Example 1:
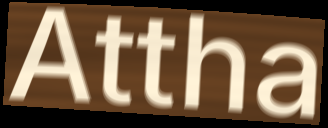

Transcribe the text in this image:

Attha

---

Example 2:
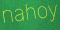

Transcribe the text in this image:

nahoy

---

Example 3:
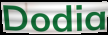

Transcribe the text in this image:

Dodia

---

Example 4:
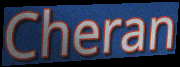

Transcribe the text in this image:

Cheran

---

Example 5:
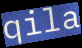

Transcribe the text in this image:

qila